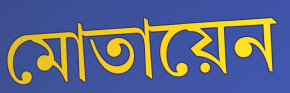
মোতায়েন